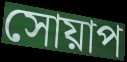
সোয়াপ